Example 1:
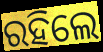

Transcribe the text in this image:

ରହିଲେ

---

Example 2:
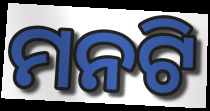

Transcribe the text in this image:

ମନଟି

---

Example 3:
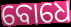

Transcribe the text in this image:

ବୋଧେ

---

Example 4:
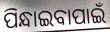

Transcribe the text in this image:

ପିନ୍ଧାଇବାପାଇଁ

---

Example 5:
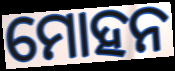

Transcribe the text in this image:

ମୋହନ